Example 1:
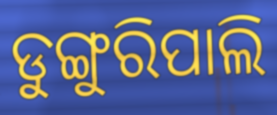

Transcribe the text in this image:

ଡୁଙ୍ଗୁରିପାଲି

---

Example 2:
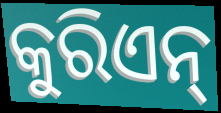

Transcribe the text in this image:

କୁରିଏନ୍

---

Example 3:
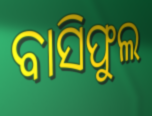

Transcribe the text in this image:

ବାସିଫୁଲ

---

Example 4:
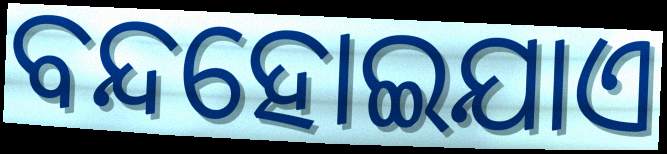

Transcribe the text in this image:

ବନ୍ଦହୋଇଯାଏ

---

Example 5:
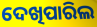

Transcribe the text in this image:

ଦେଖିପାରିଲ